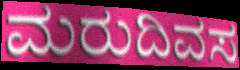
ಮರುದಿವಸ